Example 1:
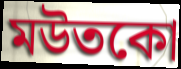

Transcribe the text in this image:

মউতকো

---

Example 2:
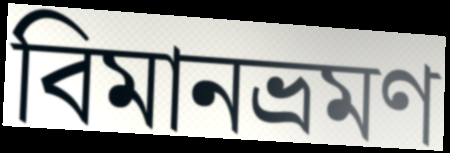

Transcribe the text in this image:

বিমানভ্রমণ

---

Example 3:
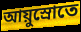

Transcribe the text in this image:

আয়ুস্রোতে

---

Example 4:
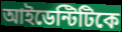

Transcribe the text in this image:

আইডেন্টিটিকে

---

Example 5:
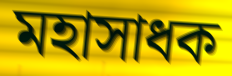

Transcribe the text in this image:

মহাসাধক